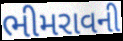
ભીમરાવની